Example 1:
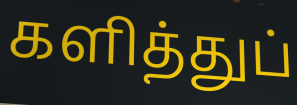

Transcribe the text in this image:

களித்துப்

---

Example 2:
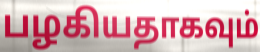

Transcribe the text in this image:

பழகியதாகவும்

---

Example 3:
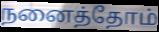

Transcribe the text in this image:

நனைத்தோம்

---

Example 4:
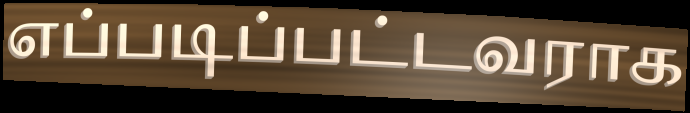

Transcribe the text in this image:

எப்படிப்பட்டவராக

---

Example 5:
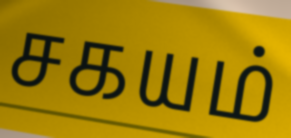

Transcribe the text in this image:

சகயம்